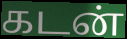
கடன்